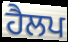
ਹੈਲਪ